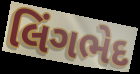
લિંગભેદ